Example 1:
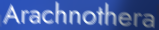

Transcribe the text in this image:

Arachnothera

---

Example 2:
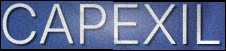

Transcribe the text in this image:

CAPEXIL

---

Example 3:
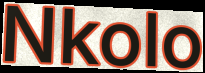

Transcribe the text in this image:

Nkolo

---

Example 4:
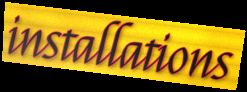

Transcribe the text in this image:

installations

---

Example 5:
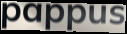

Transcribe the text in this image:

pappus